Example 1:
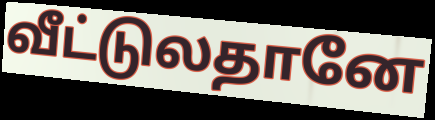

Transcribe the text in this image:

வீட்டுலதானே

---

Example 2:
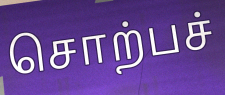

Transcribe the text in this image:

சொற்பச்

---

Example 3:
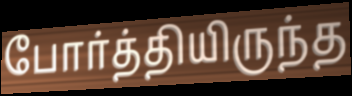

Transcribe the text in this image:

போர்த்தியிருந்த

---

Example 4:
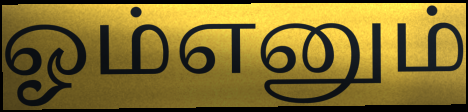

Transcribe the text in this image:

ஓம்எனும்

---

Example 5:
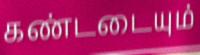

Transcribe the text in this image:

கண்டடையும்